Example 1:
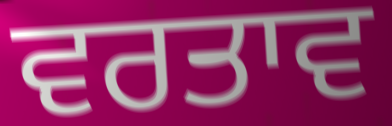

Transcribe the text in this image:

ਵਰਤਾਵ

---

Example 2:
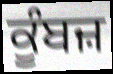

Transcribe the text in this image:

ਕੂੰਬਜ਼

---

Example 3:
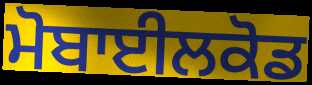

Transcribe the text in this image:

ਮੋਬਾਈਲਕੋਡ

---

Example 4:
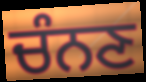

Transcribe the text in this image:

ਚੰਨਣ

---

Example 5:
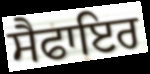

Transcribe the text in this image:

ਸੈਫਾਇਰ